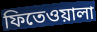
ফিতেওয়ালা